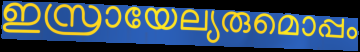
ഇസ്രായേല്യരുമൊപ്പം